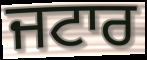
ਜਟਾਰ